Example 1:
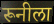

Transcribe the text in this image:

रूनीला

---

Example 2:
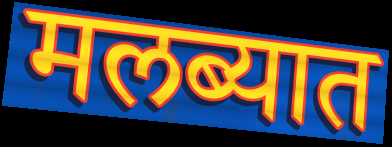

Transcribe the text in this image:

मलब्यात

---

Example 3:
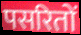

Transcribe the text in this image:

पसरितों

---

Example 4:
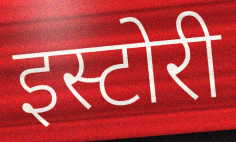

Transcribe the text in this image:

इस्टोरी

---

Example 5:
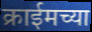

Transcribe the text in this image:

क्राईमच्या